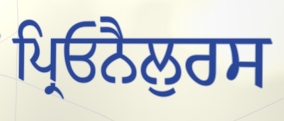
ਪ੍ਰਿਓਨੈਲੁਰਸ